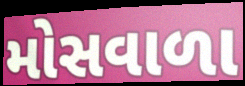
મોસવાળા